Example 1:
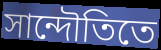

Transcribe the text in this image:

সান্দৌতিতে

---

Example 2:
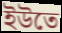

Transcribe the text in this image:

ইউতে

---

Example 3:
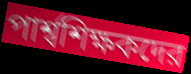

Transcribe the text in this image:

পার্শ্বশিক্ষকদের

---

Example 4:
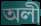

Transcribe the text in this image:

অলী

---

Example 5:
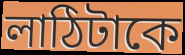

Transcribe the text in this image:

লাঠিটাকে